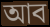
আব